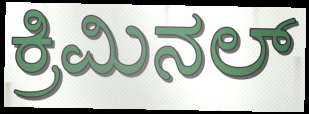
ಕ್ರಿಮಿನಲ್